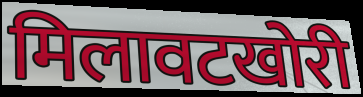
मिलावटखोरी